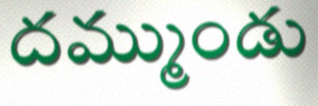
దమ్ముండు